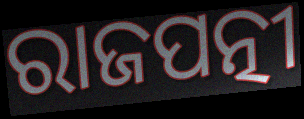
ରାଜପତ୍ନୀ